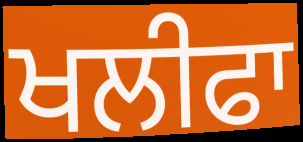
ਖਲੀਫਾ